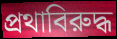
প্রথাবিরুদ্ধ